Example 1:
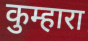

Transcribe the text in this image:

कुम्हारा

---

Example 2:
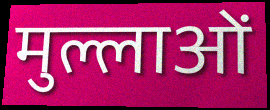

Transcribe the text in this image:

मुल्लाओं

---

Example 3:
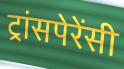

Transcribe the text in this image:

ट्रांसपेरेंसी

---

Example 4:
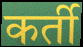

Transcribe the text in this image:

कर्ती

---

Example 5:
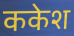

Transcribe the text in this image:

ककेश